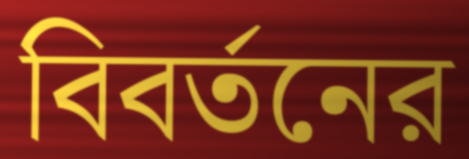
বিবর্তনের